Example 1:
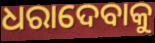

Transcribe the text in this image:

ଧରାଦେବାକୁ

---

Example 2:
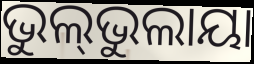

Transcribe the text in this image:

ଭୁଲ୍‌ଭୁଲାୟା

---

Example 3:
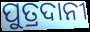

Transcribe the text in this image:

ପୁତ୍ରଦାନୀ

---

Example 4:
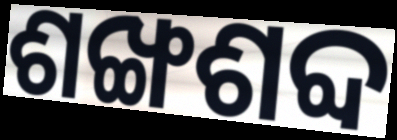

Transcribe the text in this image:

ଶଙ୍ଖଶବ୍ଦ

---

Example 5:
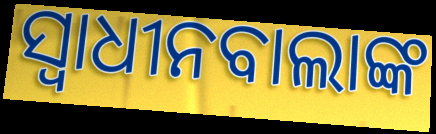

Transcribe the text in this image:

ସ୍ୱାଧୀନବାଲାଙ୍କ